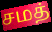
சமத்